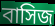
বাসিজ